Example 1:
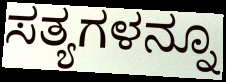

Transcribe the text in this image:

ಸತ್ಯಗಳನ್ನೂ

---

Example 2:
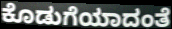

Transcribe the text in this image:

ಕೊಡುಗೆಯಾದಂತೆ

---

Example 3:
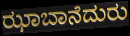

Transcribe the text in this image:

ಝಾಬಾನೆದುರು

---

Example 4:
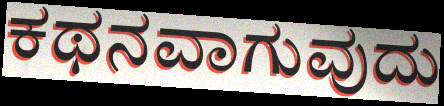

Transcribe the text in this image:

ಕಥನವಾಗುವುದು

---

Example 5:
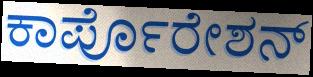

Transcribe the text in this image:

ಕಾರ್ಪೊರೇಶನ್